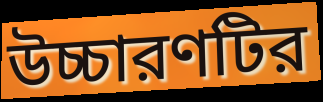
উচ্চারণটির